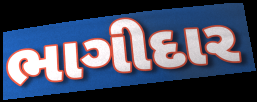
ભાગીદાર